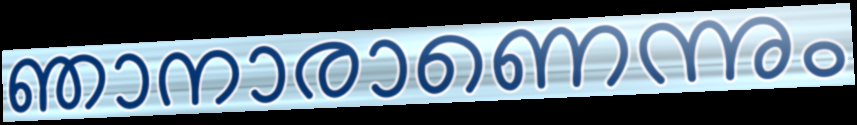
ഞാനാരാണെന്നും